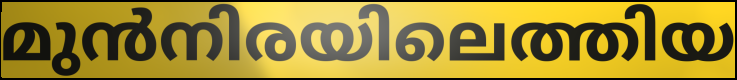
മുൻനിരയിലെത്തിയ